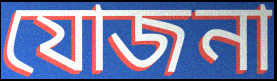
যোজনা